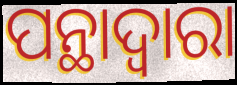
ପନ୍ଥାଦ୍ୱାରା